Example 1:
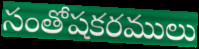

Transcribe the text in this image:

సంతోషకరములు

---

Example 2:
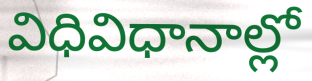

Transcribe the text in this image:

విధివిధానాల్లో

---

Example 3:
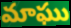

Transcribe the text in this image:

మాఘు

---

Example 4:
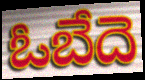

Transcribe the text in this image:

ఓబేదె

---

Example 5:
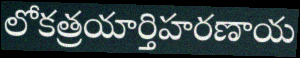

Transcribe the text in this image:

లోకత్రయార్తిహరణాయ